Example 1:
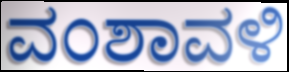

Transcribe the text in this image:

ವಂಶಾವಳಿ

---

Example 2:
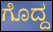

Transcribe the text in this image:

ಗೊದ್ದ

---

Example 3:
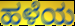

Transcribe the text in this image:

ಹಳೆಯ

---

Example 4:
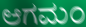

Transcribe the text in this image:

ಆಗಮಂ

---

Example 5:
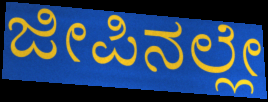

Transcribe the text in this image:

ಜೀಪಿನಲ್ಲೇ